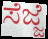
ಸೆಜ್ಜೆ